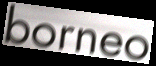
borneo